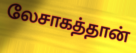
லேசாகத்தான்